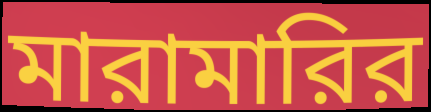
মারামারির